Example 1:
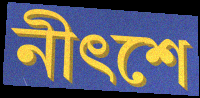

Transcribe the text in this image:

নীৎশে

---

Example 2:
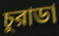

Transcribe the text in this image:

চুরাডা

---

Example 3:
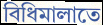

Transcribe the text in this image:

বিধিমালাতে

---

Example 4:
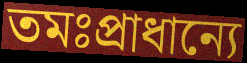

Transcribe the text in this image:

তমঃপ্রাধান্যে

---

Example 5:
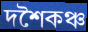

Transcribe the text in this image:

দশৈকঞ্চ